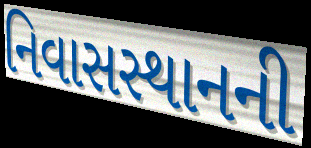
નિવાસસ્થાનની